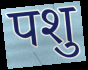
पशु